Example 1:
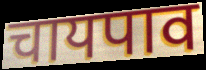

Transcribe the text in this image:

चायपाव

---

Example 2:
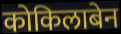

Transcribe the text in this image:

कोकिलाबेन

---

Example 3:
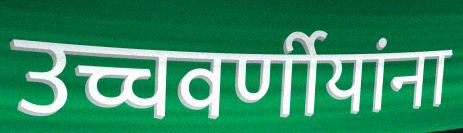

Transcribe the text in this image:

उच्चवर्णीयांना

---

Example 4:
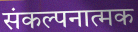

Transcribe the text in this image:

संकल्पनात्मक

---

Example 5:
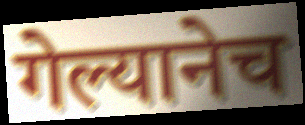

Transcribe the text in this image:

गेल्यानेच